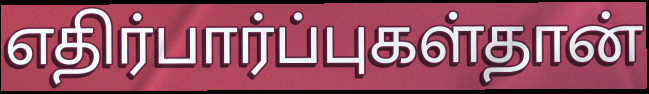
எதிர்பார்ப்புகள்தான்